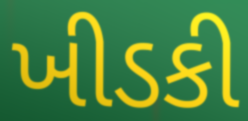
ખીડકી